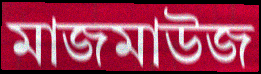
মাজমাউজ